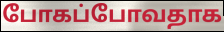
போகப்போவதாக